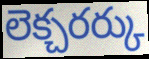
లెక్చరర్కు